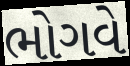
ભોગવે